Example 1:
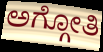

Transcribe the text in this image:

ಅಗ್ಗೋತಿ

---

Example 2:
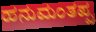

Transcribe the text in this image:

ಹನುಮಂತಪ್ಪ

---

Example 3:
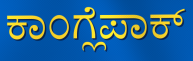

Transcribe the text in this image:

ಕಾಂಗ್ಲೆಪಾಕ್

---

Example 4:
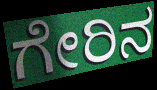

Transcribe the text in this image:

ಗೇರಿನ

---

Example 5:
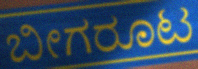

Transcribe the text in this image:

ಬೀಗರೂಟ